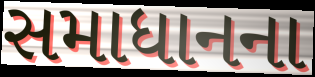
સમાધાનના